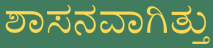
ಶಾಸನವಾಗಿತ್ತು